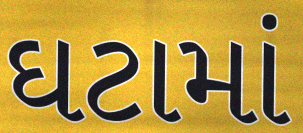
ઘટામાં